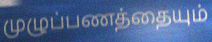
முழுப்பணத்தையும்